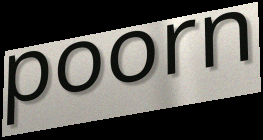
poorn